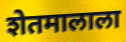
शेतमालाला